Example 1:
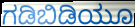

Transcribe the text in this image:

ಗಡಿಬಿಡಿಯೂ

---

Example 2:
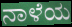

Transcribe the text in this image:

ನಾಳೆಯ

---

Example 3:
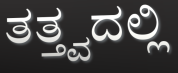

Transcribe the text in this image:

ತತ್ತ್ವದಲ್ಲಿ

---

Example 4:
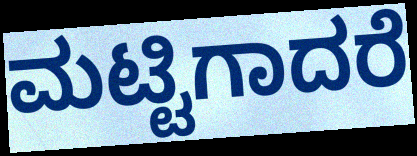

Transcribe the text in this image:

ಮಟ್ಟಿಗಾದರೆ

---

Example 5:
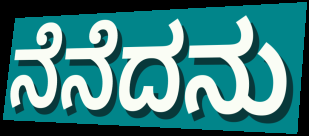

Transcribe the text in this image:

ನೆನೆದನು